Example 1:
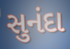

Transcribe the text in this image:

સુનંદા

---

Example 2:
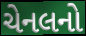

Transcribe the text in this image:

ચેનલનો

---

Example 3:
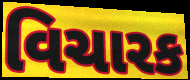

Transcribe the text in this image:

વિચારક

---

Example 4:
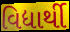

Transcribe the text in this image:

વિદ્યાર્થી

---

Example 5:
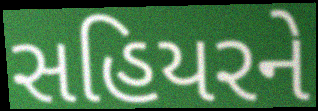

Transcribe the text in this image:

સહિયરને